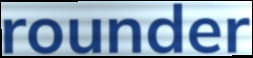
rounder